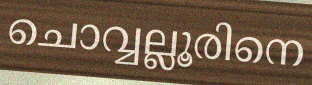
ചൊവ്വല്ലൂരിനെ